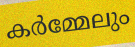
കർമ്മേലും